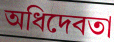
অধিদেবতা